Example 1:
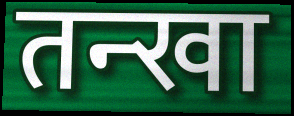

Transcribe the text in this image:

तन्खा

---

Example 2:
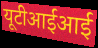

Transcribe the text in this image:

यूटीआईआई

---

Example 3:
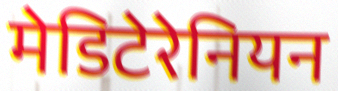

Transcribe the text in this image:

मेडिटेरेनियन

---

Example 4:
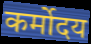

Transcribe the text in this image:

कर्मोदय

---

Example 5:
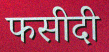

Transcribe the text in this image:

फसीदी